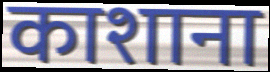
काशाना